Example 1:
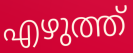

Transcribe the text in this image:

എഴുത്ത്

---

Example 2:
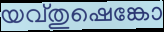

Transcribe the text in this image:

യവ്തുഷെങ്കോ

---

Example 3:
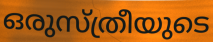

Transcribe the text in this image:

ഒരുസ്ത്രീയുടെ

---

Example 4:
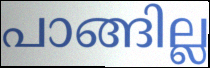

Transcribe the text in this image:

പാങ്ങില്ല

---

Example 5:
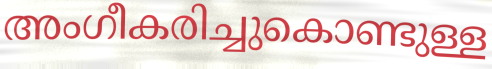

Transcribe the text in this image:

അംഗീകരിച്ചുകൊണ്ടുള്ള